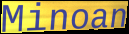
Minoan